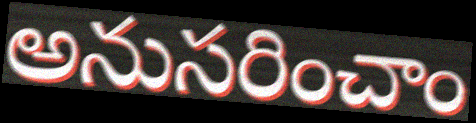
అనుసరించాం